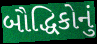
બૌદ્ધિકોનું